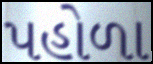
પહોળા